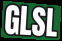
GLSL